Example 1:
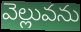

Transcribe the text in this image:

వెల్లువను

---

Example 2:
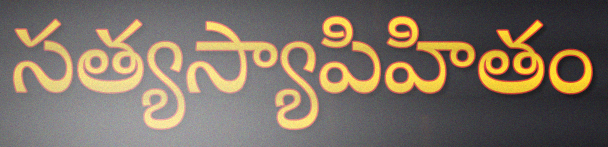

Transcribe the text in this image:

సత్యస్యాపిహితం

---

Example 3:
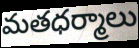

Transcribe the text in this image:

మతధర్మాలు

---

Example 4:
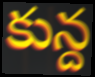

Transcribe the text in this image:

కున్ద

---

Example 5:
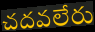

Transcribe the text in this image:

చదవలేరు